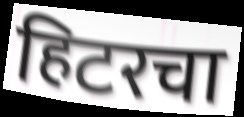
हिटरचा